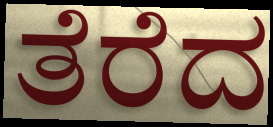
ತೆರೆದ